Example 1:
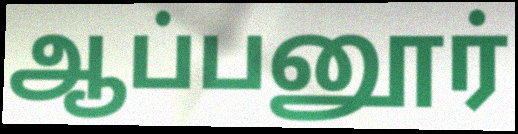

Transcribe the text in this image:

ஆப்பனூர்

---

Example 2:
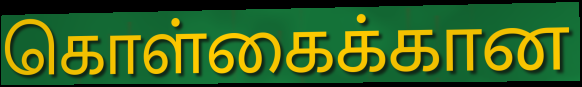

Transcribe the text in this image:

கொள்கைக்கான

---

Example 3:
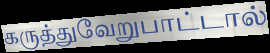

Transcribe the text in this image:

கருத்துவேறுபாட்டால்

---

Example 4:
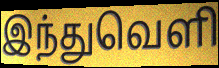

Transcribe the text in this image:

இந்துவெளி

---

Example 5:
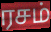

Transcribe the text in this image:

ரசம்